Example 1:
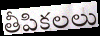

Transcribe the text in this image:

తీపికలలు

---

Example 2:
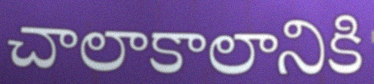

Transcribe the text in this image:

చాలాకాలానికి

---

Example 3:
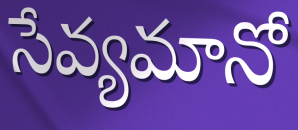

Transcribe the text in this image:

సేవ్యమానో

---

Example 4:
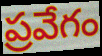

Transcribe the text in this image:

ప్రవేగం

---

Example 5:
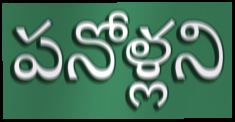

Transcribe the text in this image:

పనోళ్లని